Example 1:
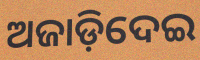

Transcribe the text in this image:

ଅଜାଡ଼ିଦେଇ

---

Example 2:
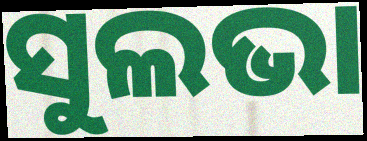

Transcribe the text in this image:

ସୁଲଭା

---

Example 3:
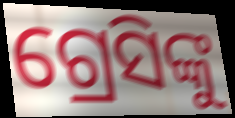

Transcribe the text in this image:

ଗ୍ରେସିଙ୍କୁ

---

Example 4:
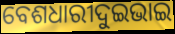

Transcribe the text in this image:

ବେଶଧାରୀଦୁଇଭାଇ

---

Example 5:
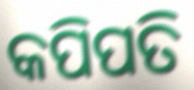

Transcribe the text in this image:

କପିପତି